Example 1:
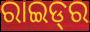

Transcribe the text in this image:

ରାଇଡ୍‌ର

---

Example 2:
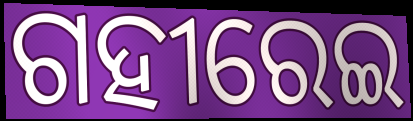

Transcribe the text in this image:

ଗହୀରେଇ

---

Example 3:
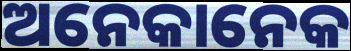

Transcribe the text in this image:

ଅନେକାନେକ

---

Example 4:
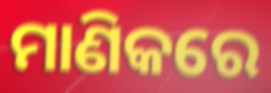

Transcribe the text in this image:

ମାଣିକରେ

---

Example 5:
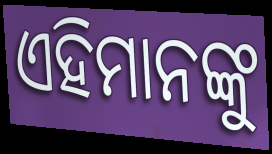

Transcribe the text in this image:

ଏହିମାନଙ୍କୁ